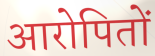
आरोपितों